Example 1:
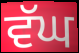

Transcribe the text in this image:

ਵੱਘ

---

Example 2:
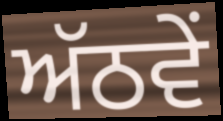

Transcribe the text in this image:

ਅੱਠਵੇਂ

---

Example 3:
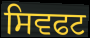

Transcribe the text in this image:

ਸਿਵਫਟ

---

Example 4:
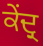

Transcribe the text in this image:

ਕੇਂਦ੍ਰ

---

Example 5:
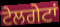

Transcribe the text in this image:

ਟੇਲਗੇਟਾਂ